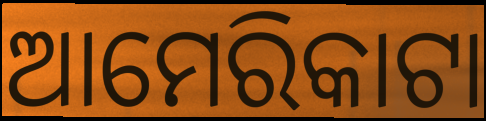
ଆମେରିକାଟା